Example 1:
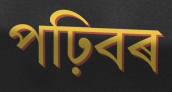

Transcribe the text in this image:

পঢ়িবৰ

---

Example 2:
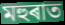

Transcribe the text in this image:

মহুৰাত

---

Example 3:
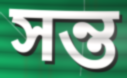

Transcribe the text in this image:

সন্ত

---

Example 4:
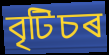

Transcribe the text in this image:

বৃটিচৰ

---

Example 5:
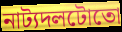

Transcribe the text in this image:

নাট্যদলটোতো